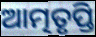
ଆତ୍ମତୃପ୍ତି